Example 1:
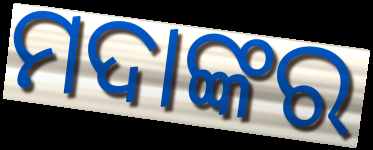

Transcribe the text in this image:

ମଦାଙ୍କର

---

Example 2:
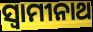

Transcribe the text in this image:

ସ୍ୱାମୀନାଥ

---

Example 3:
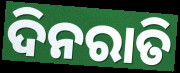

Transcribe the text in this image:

ଦିନରାତି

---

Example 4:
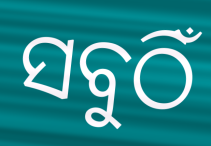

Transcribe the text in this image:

ସବୁଠିଁ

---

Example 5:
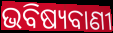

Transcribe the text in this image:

ଭବିଷ୍ୟବାଣୀ